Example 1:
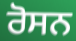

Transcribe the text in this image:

ਰੋਸਨ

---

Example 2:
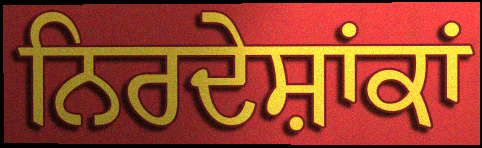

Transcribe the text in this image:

ਨਿਰਦੇਸ਼ਾਂਕਾਂ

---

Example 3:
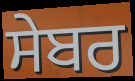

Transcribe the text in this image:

ਸੇਬਰ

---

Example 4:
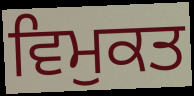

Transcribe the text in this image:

ਵਿਮੁਕਤ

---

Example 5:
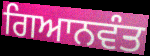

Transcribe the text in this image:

ਗਿਆਨਵੰਤ